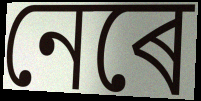
নেৰে